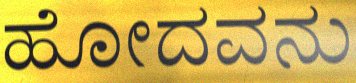
ಹೋದವನು